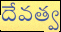
దేవత్వ